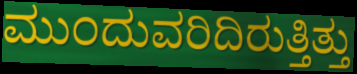
ಮುಂದುವರಿದಿರುತ್ತಿತ್ತು